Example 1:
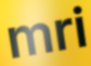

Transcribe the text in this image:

mri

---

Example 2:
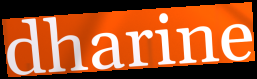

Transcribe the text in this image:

dharine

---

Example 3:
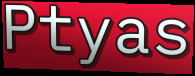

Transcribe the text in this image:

Ptyas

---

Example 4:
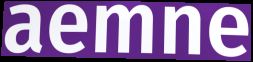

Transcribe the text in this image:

aemne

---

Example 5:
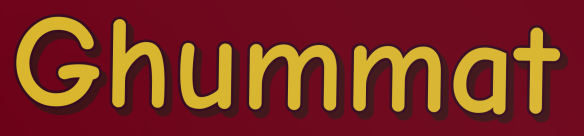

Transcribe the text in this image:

Ghummat